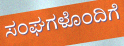
ಸಂಘಗಳೊಂದಿಗೆ